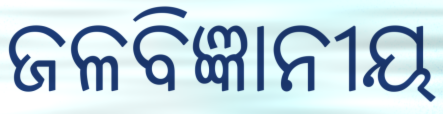
ଜଳବିଜ୍ଞାନୀୟ